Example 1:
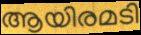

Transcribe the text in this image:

ആയിരമടി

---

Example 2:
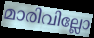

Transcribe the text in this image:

മാരിവില്ലോ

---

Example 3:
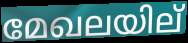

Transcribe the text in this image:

മേഖലയില്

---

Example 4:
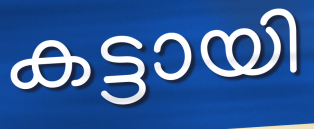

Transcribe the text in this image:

കട്ടായി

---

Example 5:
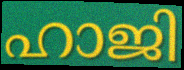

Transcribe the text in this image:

ഹാജി